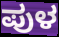
ಪುಳ